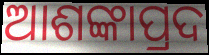
ଆଶଙ୍କାପ୍ରଦ